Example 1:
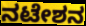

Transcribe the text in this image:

ನಟೇಶನ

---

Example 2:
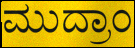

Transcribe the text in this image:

ಮುದ್ರಾಂ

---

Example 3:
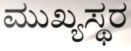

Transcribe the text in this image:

ಮುಖ್ಯಸ್ಥರ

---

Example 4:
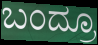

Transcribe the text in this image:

ಬಂದ್ರೂ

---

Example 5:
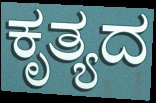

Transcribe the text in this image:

ಕೃತ್ಯದ